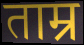
ताम्र